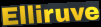
Elliruve